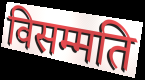
विसम्मति